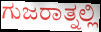
ಗುಜರಾತ್ನಲ್ಲಿ